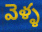
వెళ్ళ